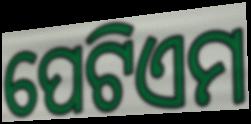
ପେଟିଏମ